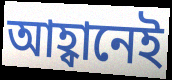
আহ্বানেই